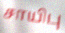
சாயிபு